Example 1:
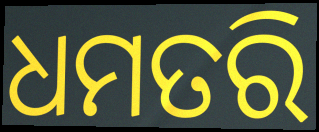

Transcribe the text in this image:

ଧମତରି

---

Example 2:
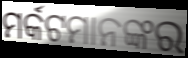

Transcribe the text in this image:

ମର୍କଟମାନଙ୍କର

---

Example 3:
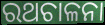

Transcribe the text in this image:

ରଥଚାଳନା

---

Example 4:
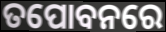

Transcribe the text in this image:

ତପୋବନରେ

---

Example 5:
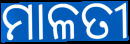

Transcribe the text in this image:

ମାଳତୀ